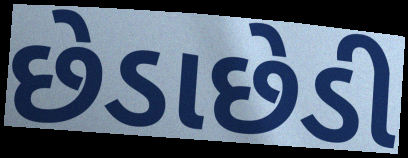
છેડાછેડી